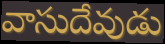
వాసుదేవుడు